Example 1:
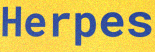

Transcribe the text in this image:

Herpes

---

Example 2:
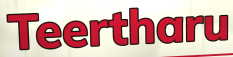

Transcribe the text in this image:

Teertharu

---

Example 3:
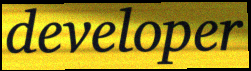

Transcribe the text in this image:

developer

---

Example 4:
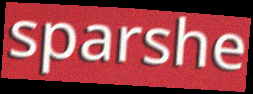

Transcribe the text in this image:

sparshe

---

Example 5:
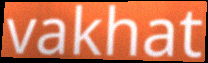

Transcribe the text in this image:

vakhat